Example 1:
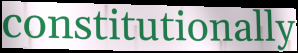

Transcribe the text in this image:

constitutionally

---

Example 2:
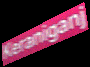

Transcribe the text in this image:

Keraniganj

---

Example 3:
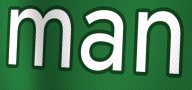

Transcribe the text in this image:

man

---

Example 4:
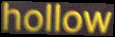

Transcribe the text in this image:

hollow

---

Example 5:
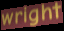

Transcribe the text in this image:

wright